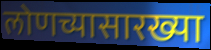
लोणच्यासारख्या